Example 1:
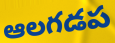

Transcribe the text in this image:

ఆలగడప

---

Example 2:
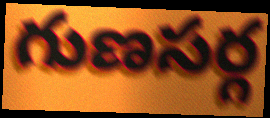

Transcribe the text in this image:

గుణసర్గ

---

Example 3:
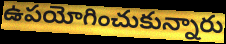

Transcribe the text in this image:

ఉపయోగించుకున్నారు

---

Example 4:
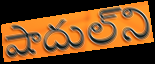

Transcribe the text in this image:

షాదుల్‌ని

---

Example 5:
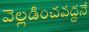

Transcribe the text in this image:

వెల్లడించవద్దనే